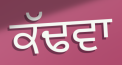
ਕੱਢਵਾ